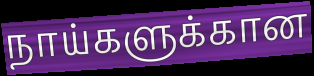
நாய்களுக்கான